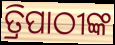
ତ୍ରିପାଠୀଙ୍କ